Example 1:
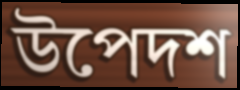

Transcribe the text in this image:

উপেদশ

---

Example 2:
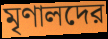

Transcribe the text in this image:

মৃণালদের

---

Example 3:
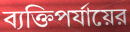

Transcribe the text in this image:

ব্যক্তিপর্যায়ের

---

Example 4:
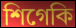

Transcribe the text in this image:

শিগেকি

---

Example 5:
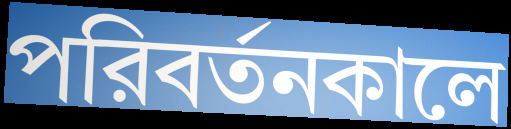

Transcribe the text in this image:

পরিবর্তনকালে